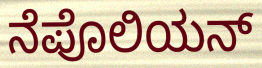
ನೆಪೊಲಿಯನ್